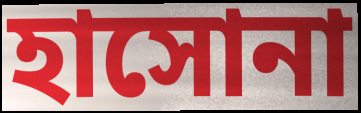
হাসোনা